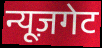
न्यूज़गेट